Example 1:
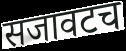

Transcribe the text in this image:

सजावटच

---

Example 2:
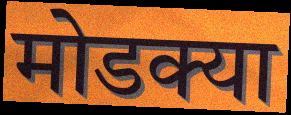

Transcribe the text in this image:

मोडक्या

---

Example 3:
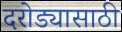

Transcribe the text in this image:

दरोड्यासाठी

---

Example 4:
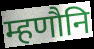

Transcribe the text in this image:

म्हणौनि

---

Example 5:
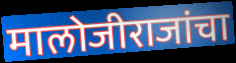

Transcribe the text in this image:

मालोजीराजांचा